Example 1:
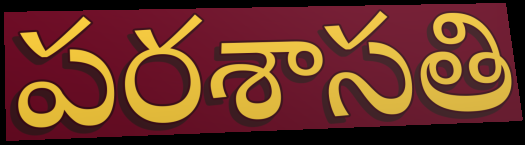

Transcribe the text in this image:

పరశాసతి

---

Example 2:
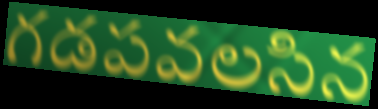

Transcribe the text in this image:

గడపవలసిన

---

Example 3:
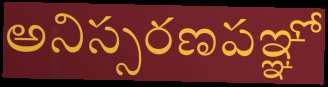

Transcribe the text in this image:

అనిస్సరణపఞ్ఞో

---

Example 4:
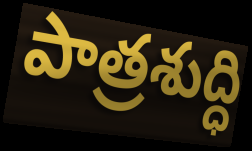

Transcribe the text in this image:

పాత్రశుద్ధి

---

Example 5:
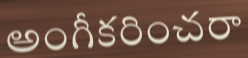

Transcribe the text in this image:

అంగీకరించరా